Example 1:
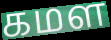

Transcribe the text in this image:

கமள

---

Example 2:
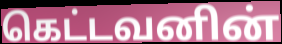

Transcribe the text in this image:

கெட்டவனின்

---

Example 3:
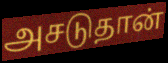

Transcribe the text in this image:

அசடுதான்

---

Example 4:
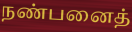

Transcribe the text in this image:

நண்பனைத்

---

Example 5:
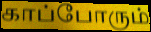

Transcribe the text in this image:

காப்போரும்